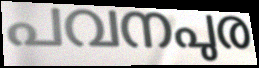
പവനപുര